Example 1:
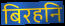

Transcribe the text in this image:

बिरहनि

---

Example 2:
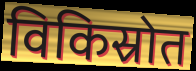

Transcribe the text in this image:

विकिस्रोत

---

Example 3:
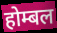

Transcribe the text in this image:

होम्बल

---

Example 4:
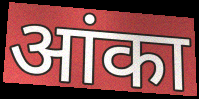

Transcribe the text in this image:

आंका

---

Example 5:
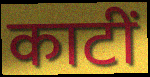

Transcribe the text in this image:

काटीं